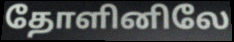
தோளினிலே